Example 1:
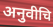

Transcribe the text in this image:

अनुवीचि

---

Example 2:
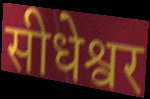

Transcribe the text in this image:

सीधेश्वर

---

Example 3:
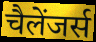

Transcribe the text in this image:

चैलेंजर्स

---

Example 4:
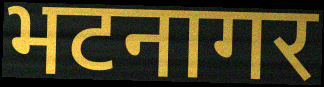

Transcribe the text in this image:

भटनागर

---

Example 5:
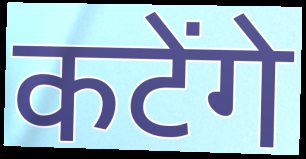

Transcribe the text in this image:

कटेंगे